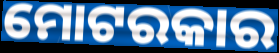
ମୋଟରକାର